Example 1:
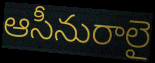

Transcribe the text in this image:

ఆసీనురాలై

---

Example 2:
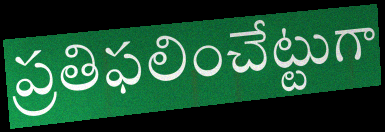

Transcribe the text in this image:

ప్రతిఫలించేట్టుగా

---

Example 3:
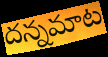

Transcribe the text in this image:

దన్నమాట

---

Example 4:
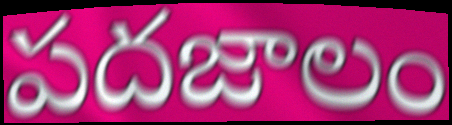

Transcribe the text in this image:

పదజాలం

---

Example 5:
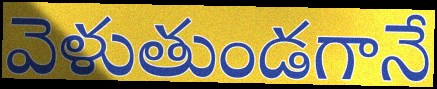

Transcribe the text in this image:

వెళుతుండగానే